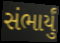
સંભાર્યું